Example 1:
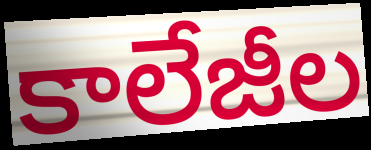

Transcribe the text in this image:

కాలేజీల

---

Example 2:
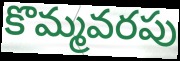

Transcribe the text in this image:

కొమ్మవరపు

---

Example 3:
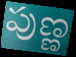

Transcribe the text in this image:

పుణ్ణ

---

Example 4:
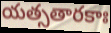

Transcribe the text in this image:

యత్సతారకాః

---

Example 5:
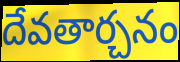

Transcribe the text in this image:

దేవతార్చనం